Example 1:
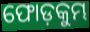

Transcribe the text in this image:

ଫୋଡ଼କୁମ୍ଭ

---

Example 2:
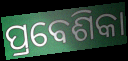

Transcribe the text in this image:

ପ୍ରବେଶିକା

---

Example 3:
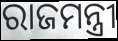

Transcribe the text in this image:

ରାଜମନ୍ତ୍ରୀ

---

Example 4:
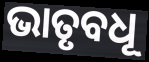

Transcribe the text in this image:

ଭାତୃବଧୂ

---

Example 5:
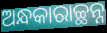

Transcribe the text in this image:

ଅନ୍ଧକାରାଚ୍ଛନ୍ନ